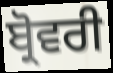
ਬ੍ਰੋਵਰੀ